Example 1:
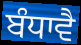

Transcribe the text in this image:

ਬੰਧਾਵੈ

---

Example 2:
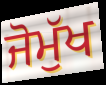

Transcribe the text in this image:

ਜੋਮੁੱਖ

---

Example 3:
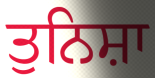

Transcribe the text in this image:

ਤੁਨਿਸ਼ਾ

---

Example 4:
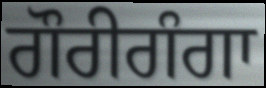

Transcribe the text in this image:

ਗੌਰੀਗੰਗਾ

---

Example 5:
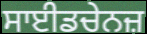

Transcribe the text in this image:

ਸਾਈਡਚੇਨਜ਼